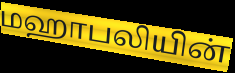
மஹாபலியின்